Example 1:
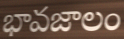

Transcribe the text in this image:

భావజాలం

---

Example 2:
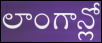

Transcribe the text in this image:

లాంగాన్లో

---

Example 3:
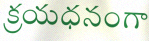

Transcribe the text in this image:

క్రయధనంగా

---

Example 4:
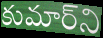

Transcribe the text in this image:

కుమార్‌ని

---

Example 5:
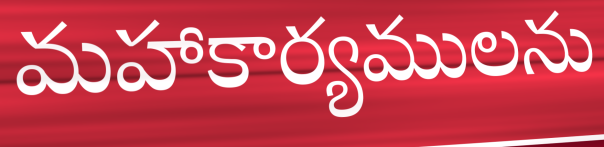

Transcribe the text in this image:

మహాకార్యములను